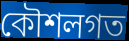
কৌশলগত